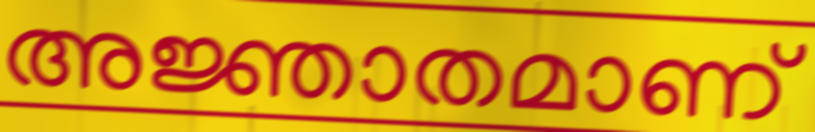
അജ്ഞാതമാണ്